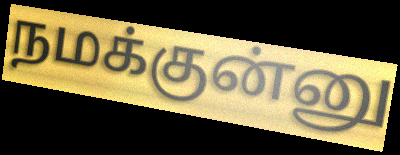
நமக்குன்னு